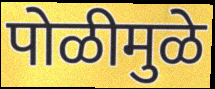
पोळीमुळे